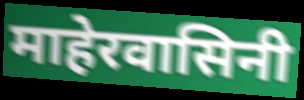
माहेरवासिनी